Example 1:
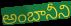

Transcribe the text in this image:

అంబానీని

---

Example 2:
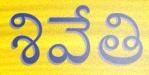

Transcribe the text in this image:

శివేతి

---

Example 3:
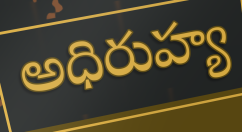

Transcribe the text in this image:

అధిరుహ్య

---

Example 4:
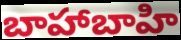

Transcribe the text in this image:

బాహాబాహి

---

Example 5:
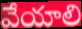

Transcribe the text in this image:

వేయాలి